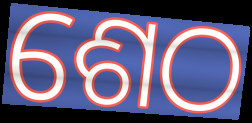
ଶେଠ